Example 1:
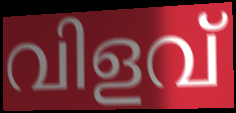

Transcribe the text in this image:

വിളവ്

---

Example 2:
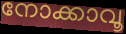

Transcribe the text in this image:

നോക്കാവൂ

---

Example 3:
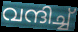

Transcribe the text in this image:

വന്ദിച്ച്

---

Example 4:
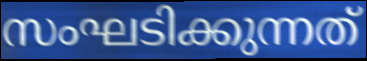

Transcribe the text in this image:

സംഘടിക്കുന്നത്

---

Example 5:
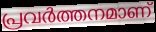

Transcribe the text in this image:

പ്രവർത്തനമാണ്